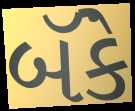
બૅંકે